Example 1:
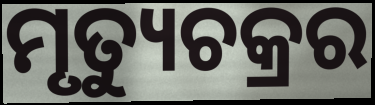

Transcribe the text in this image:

ମୃତ୍ୟୁଚକ୍ରର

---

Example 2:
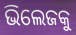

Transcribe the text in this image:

ଭିଲେଜକୁ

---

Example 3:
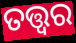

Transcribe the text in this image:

ତତ୍ତ୍ବର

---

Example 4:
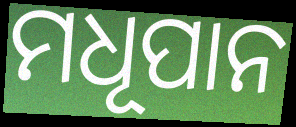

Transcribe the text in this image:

ମଧୂପାନ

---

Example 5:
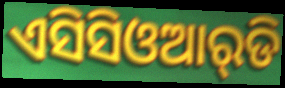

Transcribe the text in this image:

ଏସିସିଓଆର୍‌ଡି